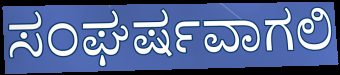
ಸಂಘರ್ಷವಾಗಲಿ